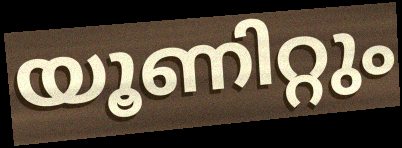
യൂണിറ്റും